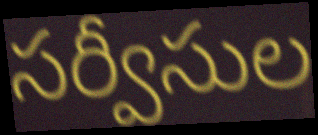
సర్వీసుల